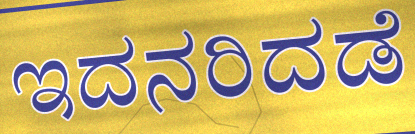
ಇದನರಿದಡೆ